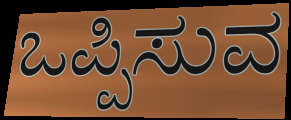
ಒಪ್ಪಿಸುವ